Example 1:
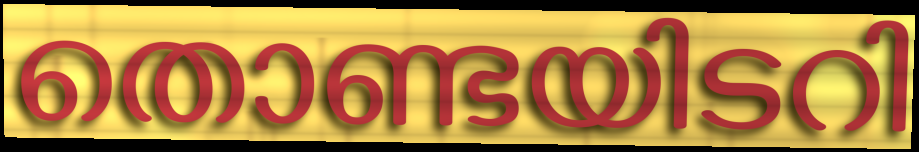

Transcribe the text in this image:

തൊണ്ടയിടറി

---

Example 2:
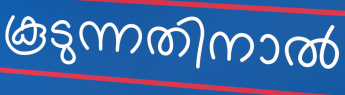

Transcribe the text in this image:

കൂടുന്നതിനാൽ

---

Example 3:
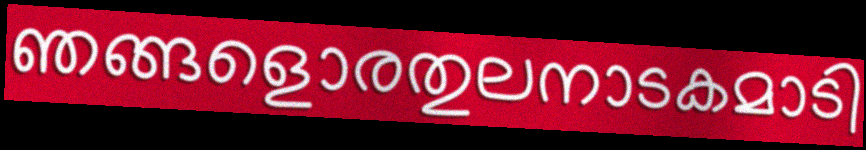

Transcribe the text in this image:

ഞങ്ങളൊരതുലനാടകമാടി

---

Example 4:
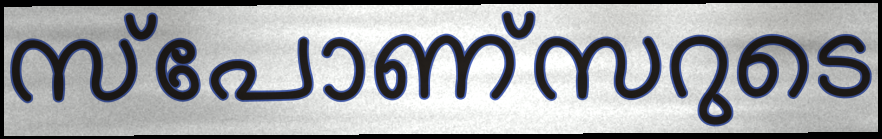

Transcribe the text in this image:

സ്പോണ്സറുടെ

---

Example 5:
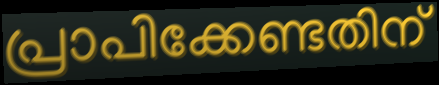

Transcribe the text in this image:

പ്രാപിക്കേണ്ടതിന്